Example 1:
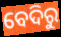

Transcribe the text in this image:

ବେଦିରୁ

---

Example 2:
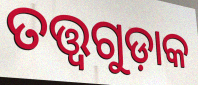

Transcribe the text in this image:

ତତ୍ତ୍ୱଗୁଡ଼ାକ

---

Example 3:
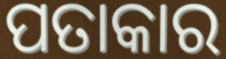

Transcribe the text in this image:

ପତାକାର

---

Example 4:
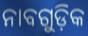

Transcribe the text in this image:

ନାବଗୁଡ଼ିକ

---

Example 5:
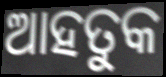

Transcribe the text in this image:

ଆହତୁକ